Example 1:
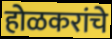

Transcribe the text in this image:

होळकरांचे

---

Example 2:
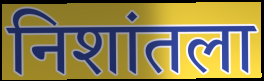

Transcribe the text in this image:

निशांतला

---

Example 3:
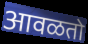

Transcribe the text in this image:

आवळतो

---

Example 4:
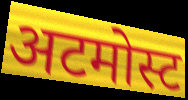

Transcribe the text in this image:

अटमोस्ट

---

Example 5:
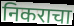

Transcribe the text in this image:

निकराचा